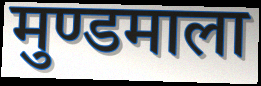
मुण्डमाला